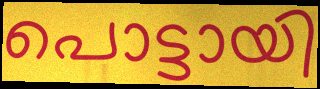
പൊട്ടായി